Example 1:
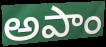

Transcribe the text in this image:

అపాం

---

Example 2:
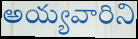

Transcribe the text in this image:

అయ్యవారిని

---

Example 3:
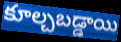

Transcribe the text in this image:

కూల్చబడ్డాయి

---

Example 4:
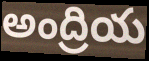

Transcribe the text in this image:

అంద్రియ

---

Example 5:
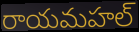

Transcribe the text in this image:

రాయమహల్